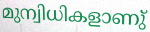
മുന്വിധികളാണു്